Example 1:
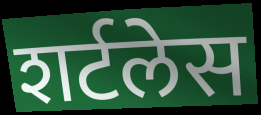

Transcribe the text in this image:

शर्टलेस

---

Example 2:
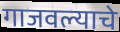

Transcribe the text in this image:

गाजवल्याचे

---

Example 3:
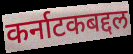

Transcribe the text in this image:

कर्नाटकबद्दल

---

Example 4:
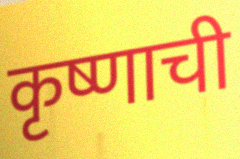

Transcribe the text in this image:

कृष्णाची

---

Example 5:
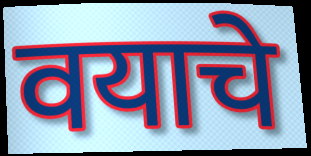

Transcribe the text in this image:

वयाचे